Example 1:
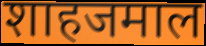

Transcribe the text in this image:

शाहजमाल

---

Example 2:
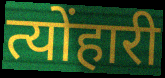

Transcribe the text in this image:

त्योंहारी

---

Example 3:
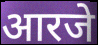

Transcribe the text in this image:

आरजे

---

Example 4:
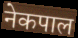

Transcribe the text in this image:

नेकपाल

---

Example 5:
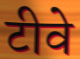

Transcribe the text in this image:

टीवे